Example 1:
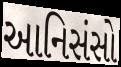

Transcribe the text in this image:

આનિસંસો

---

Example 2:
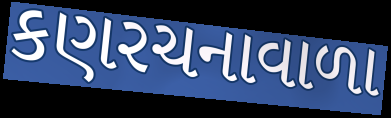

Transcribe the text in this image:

કણરચનાવાળા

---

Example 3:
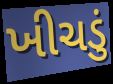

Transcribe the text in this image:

ખીચડું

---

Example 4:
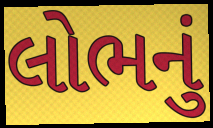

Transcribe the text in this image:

લોભનું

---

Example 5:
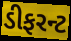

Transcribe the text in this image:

ડીફરન્ટ